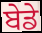
ਬੇਡੇ